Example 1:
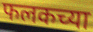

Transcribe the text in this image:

फलकच्या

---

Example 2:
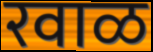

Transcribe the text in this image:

रवाळ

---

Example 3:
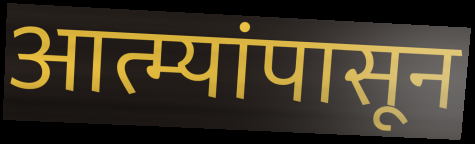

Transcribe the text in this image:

आत्म्यांपासून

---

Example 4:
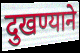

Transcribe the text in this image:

दुखण्याने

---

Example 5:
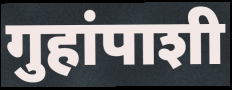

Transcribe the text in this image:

गुहांपाशी